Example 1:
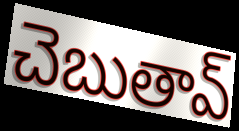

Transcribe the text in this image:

చెబుతావ్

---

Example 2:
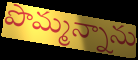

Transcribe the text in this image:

పొమ్మన్నాను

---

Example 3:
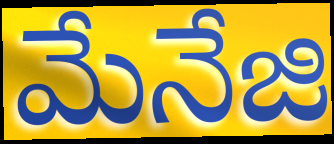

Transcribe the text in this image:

మేనేజి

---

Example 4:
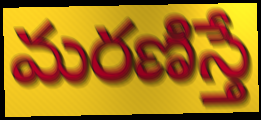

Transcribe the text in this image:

మరణిస్తే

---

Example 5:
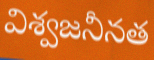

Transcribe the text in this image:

విశ్వజనీనత